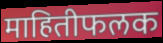
माहितीफलक